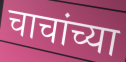
चाचांच्या